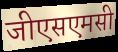
जीएसएमसी